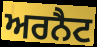
ਅਰਨੈਟ